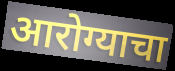
आरोग्याचा